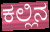
ಕಲ್ಲಿನ